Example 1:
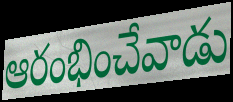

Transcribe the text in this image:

ఆరంభించేవాడు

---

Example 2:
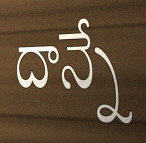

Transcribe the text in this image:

దాన్నే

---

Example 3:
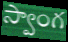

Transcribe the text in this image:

స్వాంగ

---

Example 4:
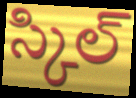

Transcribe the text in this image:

స్కిల్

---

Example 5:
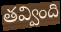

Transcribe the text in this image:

తవ్వింది